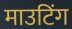
माउटिंग